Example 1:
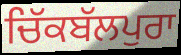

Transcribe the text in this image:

ਚਿੱਕਬੱਲਪੁਰਾ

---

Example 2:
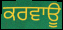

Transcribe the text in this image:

ਕਰਵਾਊ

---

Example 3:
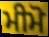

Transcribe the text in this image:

ਮੀਮੋ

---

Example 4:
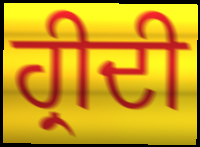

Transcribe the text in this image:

ਹ੍ਰੀਦੀ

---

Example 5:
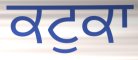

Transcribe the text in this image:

ਕਟੁਕਾ